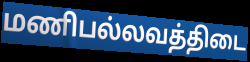
மணிபல்லவத்திடை